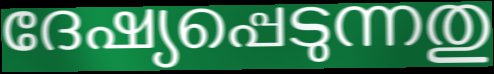
ദേഷ്യപ്പെടുന്നതു